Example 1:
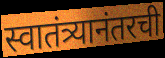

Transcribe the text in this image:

स्वातंत्र्यानंतरची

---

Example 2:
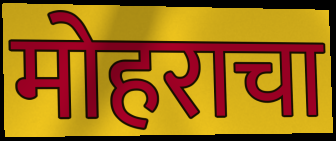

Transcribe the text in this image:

मोहराचा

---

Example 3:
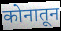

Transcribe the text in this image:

कोनातून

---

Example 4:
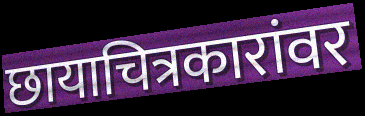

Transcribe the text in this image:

छायाचित्रकारांवर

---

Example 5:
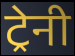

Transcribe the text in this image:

ट्रेनी